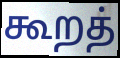
கூறத்